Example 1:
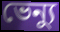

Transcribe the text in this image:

ভেন্যু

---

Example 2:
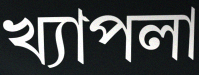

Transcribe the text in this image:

খ্যাপলা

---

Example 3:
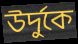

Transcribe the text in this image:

উর্দুকে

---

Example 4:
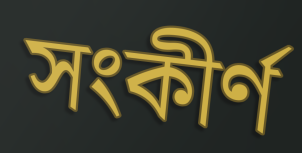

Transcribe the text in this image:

সংকীর্ণ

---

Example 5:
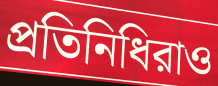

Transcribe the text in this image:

প্রতিনিধিরাও